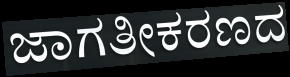
ಜಾಗತೀಕರಣದ